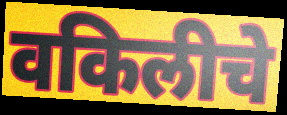
वकिलीचे